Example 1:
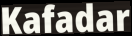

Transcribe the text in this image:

Kafadar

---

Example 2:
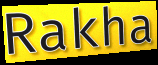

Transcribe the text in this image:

Rakha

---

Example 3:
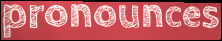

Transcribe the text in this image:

pronounces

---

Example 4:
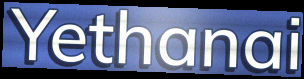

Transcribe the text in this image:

Yethanai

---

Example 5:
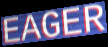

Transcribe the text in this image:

EAGER